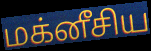
மக்னீசிய